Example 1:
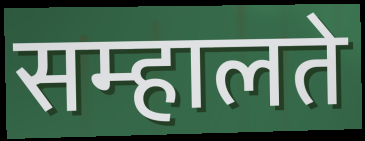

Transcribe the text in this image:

सम्हालते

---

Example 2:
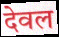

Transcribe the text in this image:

देवल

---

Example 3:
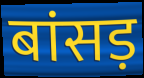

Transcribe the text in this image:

बांसड़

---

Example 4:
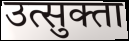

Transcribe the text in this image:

उत्सुक्ता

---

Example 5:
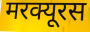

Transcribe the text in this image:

मरक्यूरस